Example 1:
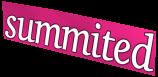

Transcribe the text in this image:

summited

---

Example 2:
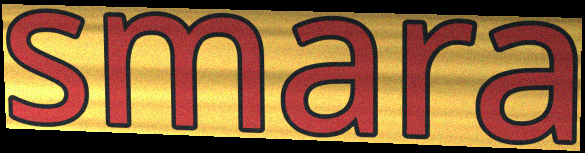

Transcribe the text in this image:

smara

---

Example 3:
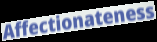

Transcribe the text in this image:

Affectionateness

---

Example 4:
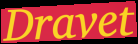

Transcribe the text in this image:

Dravet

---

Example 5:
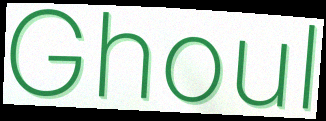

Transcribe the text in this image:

Ghoul